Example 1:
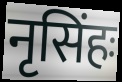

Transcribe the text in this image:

नृसिंहः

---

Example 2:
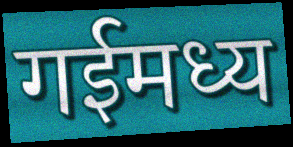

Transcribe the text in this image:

गईमध्य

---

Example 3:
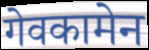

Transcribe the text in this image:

गेवकामेन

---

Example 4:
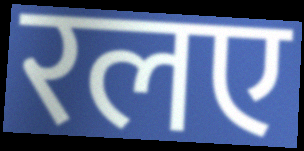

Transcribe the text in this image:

रलए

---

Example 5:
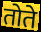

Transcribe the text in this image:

तोते